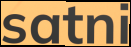
satni